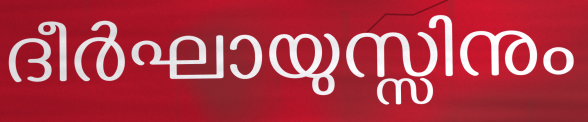
ദീർഘായുസ്സിനും